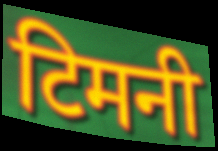
टिमनी